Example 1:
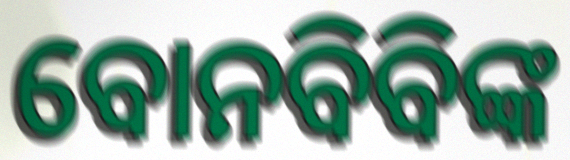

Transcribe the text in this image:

ବୋନବିବିଙ୍କ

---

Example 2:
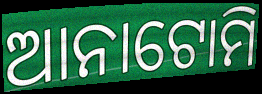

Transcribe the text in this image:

ଆନାଟୋମି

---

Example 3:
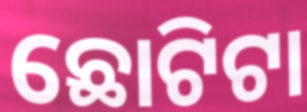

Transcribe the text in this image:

ଛୋଟିଟା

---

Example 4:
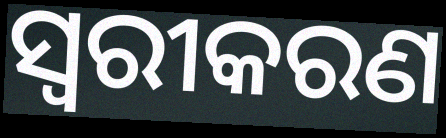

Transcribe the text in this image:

ସ୍ୱରୀକରଣ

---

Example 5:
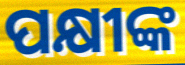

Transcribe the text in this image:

ପକ୍ଷୀଙ୍କ